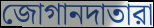
জোগানদাতারা